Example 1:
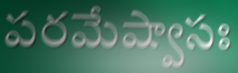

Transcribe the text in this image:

పరమేష్వాసః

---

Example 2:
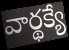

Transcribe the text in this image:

వార్థక్యే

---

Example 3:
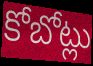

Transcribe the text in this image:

కోబోట్లు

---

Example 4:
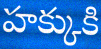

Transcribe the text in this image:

హక్కుకి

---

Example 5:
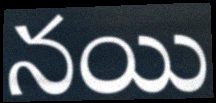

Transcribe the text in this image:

నయి